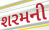
શરમની